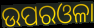
ଉପରଓଳା